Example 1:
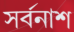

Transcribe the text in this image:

সর্বনাশ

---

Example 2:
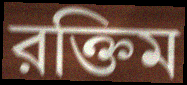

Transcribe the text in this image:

রক্তিম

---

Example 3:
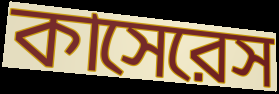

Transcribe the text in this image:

কাসেরেস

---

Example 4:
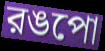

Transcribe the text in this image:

রঙপো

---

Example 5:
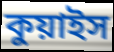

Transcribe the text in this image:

কুয়াইস